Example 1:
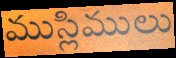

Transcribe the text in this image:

ముస్లిములు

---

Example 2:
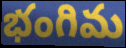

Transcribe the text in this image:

భంగిమ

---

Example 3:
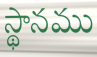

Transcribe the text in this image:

స్థానము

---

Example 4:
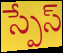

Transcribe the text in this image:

స్పేస్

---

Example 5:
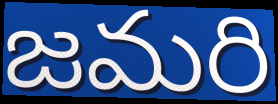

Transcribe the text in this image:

జమరి